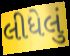
લીધેલું